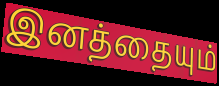
இனத்தையும்